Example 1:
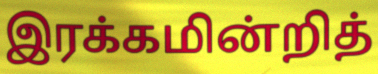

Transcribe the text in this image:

இரக்கமின்றித்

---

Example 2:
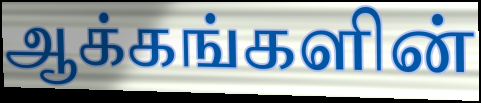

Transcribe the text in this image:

ஆக்கங்களின்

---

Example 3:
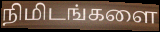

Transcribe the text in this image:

நிமிடங்களை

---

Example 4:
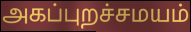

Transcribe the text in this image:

அகப்புறச்சமயம்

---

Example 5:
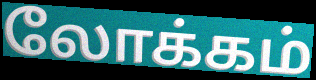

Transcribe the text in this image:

லோக்கம்